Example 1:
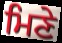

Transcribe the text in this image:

ਮਿਣੇ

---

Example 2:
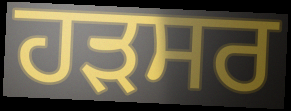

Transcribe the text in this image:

ਹੜਸਰ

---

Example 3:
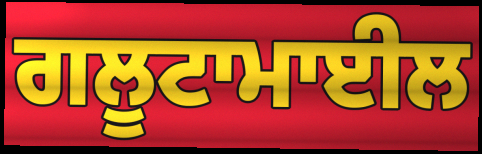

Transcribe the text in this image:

ਗਲੂਟਾਮਾਈਲ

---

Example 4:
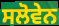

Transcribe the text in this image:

ਸਲੋਵੇਨ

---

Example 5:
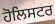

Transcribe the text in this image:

ਹੋਲਿਸਟਰ